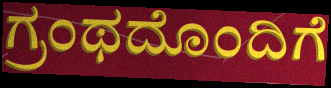
ಗ್ರಂಥದೊಂದಿಗೆ